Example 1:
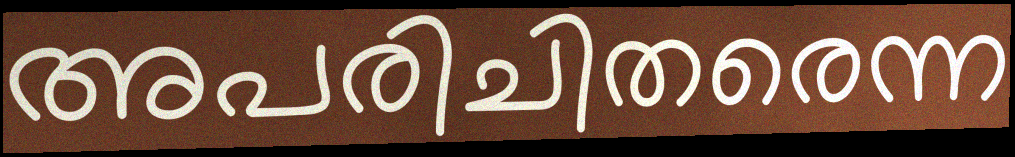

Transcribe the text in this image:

അപരിചിതരെന്ന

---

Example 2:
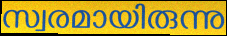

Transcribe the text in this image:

സ്വരമായിരുന്നു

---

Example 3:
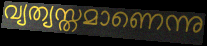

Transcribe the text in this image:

വ്യത്യസ്തമാണെന്നു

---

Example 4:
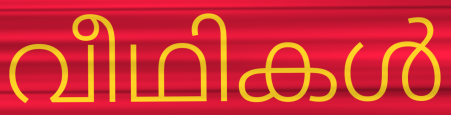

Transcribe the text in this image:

വീഥികൾ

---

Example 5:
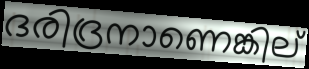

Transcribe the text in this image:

ദരിദ്രനാണെങ്കില്